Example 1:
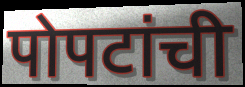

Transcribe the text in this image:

पोपटांची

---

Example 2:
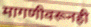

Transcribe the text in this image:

मागणीवरूनही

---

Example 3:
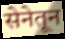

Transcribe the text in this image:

सेनेतून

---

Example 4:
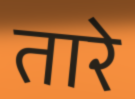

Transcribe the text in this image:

तारे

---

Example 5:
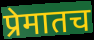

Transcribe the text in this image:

प्रेमातच